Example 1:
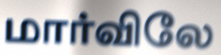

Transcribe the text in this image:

மார்விலே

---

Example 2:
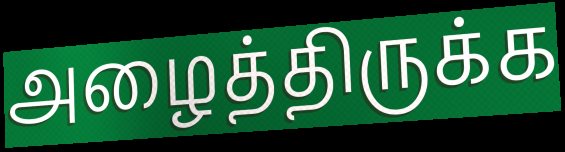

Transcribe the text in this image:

அழைத்திருக்க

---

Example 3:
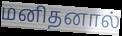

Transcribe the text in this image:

மனிதனால்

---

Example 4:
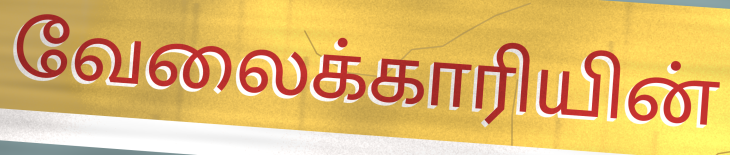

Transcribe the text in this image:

வேலைக்காரியின்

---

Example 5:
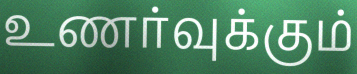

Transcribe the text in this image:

உணர்வுக்கும்